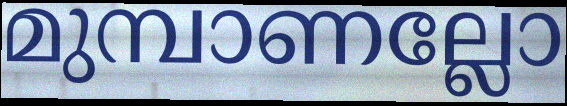
മുമ്പാണല്ലോ